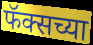
फॅक्सच्या